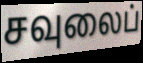
சவுலைப்